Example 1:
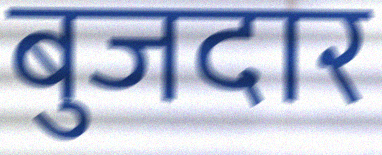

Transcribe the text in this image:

बुजदार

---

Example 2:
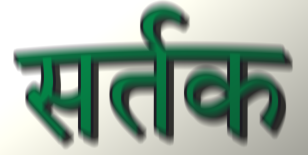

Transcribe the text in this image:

सर्तक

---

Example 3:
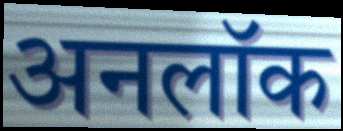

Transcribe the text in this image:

अनलॉक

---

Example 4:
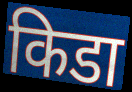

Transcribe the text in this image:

किडा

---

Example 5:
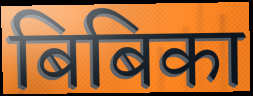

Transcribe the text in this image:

बिबिका